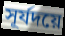
সূর্যদয়ে